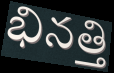
భినత్తి